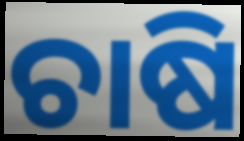
ଚାଷି